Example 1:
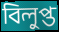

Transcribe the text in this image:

বিলুপ্ত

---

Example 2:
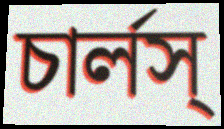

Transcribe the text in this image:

চার্লস্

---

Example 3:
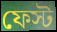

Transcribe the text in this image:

ফেস্ট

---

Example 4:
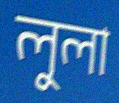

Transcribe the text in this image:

লুলা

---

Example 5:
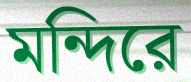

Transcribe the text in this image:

মন্দিরে